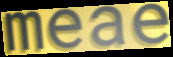
meae